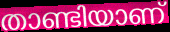
താണ്ടിയാണ്